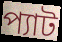
প্যাট